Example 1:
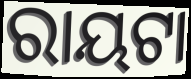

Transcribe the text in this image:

ରାୟଟା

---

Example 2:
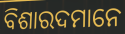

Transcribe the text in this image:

ବିଶାରଦମାନେ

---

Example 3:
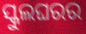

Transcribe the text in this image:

ସ୍କୁଲଘରର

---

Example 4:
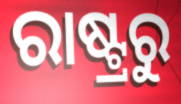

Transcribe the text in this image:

ରାଷ୍ଟ୍ରରୁ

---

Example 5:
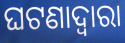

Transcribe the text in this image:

ଘଟଣାଦ୍ୱାରା